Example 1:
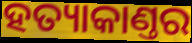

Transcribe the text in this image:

ହତ୍ୟାକାଣ୍ତର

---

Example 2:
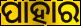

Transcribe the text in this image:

ପାହାର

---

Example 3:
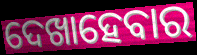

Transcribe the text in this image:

ଦେଖାହେବାର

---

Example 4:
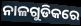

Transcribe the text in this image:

ନାଳଗୁଡିକରେ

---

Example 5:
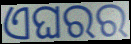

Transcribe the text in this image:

ଏଘରର